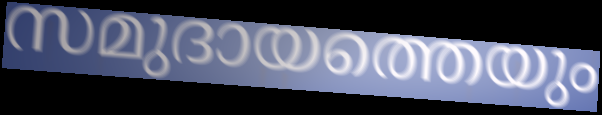
സമുദായത്തെയും